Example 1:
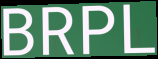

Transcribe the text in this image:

BRPL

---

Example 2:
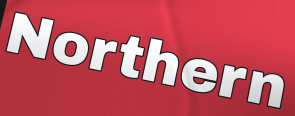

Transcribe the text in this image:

Northern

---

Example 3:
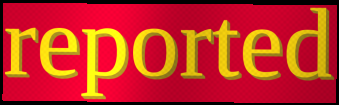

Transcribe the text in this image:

reported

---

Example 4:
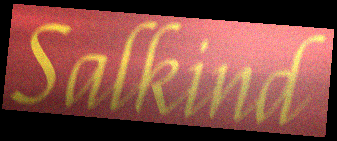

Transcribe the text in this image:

Salkind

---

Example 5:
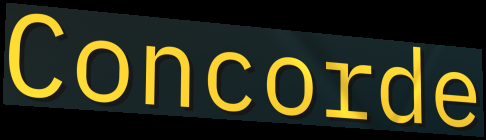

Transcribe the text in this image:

Concorde